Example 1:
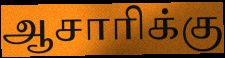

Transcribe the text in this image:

ஆசாரிக்கு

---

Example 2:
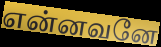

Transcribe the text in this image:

என்னவனே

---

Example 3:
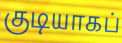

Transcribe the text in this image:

குடியாகப்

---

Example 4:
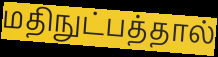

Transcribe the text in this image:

மதிநுட்பத்தால்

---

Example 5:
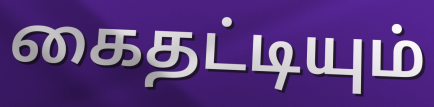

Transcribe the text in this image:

கைதட்டியும்